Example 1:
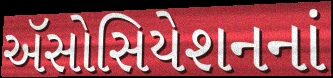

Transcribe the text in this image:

ઍસોસિયેશનનાં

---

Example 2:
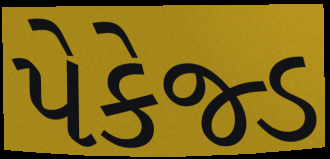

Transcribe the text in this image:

પેકેજ્ડ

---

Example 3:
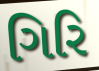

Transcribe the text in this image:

ગિરિ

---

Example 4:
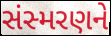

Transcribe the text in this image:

સંસ્મરણને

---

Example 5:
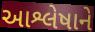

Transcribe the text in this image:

આશ્લેષાને